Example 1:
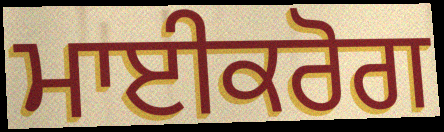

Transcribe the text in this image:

ਮਾਈਕਰੋਗ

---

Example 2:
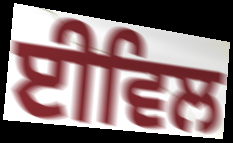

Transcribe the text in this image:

ਈਵਿਲ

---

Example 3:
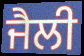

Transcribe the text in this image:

ਜੈਲੀ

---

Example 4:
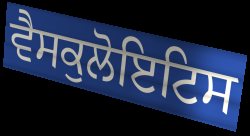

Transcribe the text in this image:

ਵੈਸਕੁਲੋਇਟਿਸ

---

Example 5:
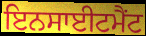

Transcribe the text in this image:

ਇਨਸਾਈਟਮੈਂਟ